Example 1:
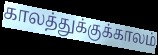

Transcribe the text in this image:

காலத்துக்குக்காலம்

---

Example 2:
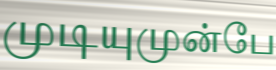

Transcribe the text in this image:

முடியுமுன்பே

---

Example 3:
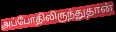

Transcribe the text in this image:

அப்போதிலிருந்துதான்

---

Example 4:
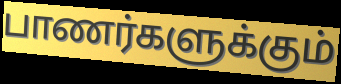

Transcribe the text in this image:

பாணர்களுக்கும்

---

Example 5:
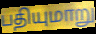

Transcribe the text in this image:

பதியுமாறு